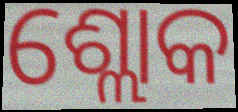
ଶ୍ଲୋକ